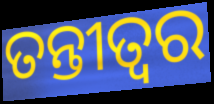
ତନ୍ତୀତ୍ୱର